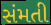
સંમતી